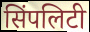
सिंपलिटी